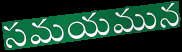
సమయమున